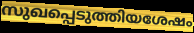
സുഖപ്പെടുത്തിയശേഷം